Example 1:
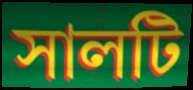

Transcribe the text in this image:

সালটি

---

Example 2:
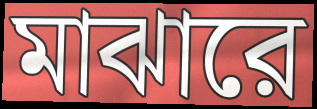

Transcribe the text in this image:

মাঝারে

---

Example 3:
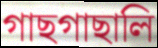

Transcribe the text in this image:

গাছগাছালি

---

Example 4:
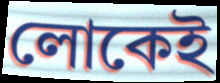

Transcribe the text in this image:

লোকেই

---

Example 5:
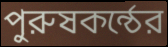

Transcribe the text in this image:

পুরুষকন্ঠের